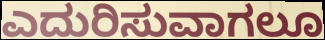
ಎದುರಿಸುವಾಗಲೂ